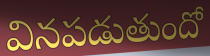
వినపడుతుందో